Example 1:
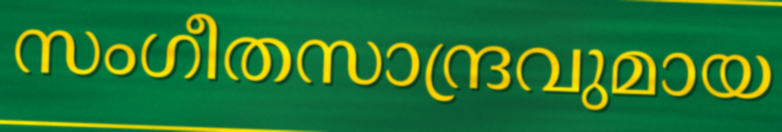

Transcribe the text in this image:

സംഗീതസാന്ദ്രവുമായ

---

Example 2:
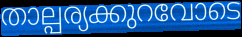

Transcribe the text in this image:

താല്പര്യക്കുറവോടെ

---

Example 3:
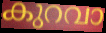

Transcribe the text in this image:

കുറവാ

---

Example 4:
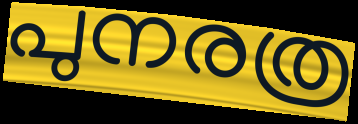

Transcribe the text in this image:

പുനരത്ര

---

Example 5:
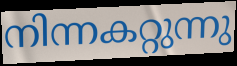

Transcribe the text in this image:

നിന്നകറ്റുന്നു